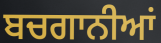
ਬਚਗਾਨੀਆਂ